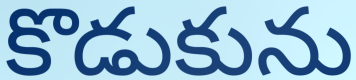
కొడుకును